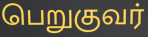
பெறுகுவர்